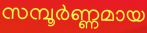
സമ്പൂർണ്ണമായ